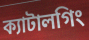
ক্যাটালগিং